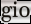
gio